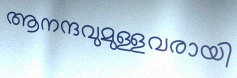
ആനന്ദവുമുള്ളവരായി